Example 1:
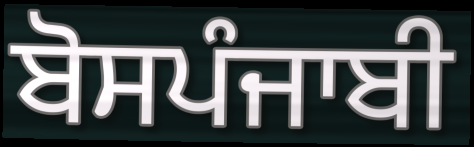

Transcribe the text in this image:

ਬੋਸਪੰਜਾਬੀ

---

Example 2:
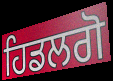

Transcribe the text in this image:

ਹਿਡਲਗੋ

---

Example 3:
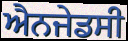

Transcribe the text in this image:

ਐਨਜੇਡਸੀ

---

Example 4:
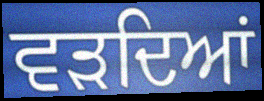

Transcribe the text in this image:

ਵੜਦਿਆਂ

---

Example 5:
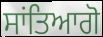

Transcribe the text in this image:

ਸਾਂਤਿਆਗੋ